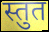
स्तुत